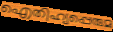
ഐതിഹ്യപ്പെരുമ